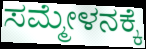
ಸಮ್ಮೇಳನಕ್ಕೆ